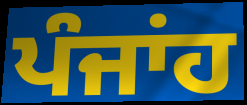
ਪੰਜਾਂਹ